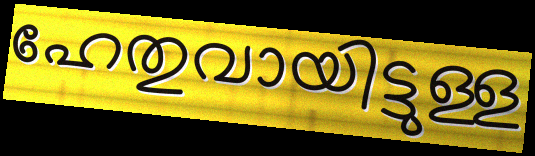
ഹേതുവായിട്ടുള്ള